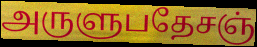
அருளுபதேசஞ்